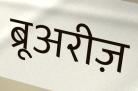
ब्रूअरीज़